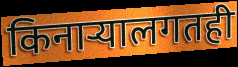
किनाऱ्यालगतही